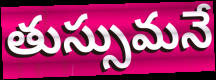
తుస్సుమనే